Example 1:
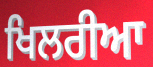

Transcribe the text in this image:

ਖਿਲਰੀਆ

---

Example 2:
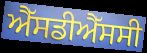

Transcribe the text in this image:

ਐੱਸਡੀਐੱਸਸੀ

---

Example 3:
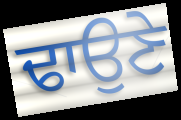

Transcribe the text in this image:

ਢਾਉਣੇ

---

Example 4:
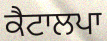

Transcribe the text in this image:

ਕੈਟਾਲਪਾ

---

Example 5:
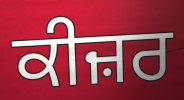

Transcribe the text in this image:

ਕੀਜ਼ਰ